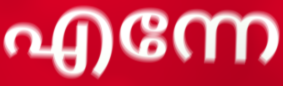
എന്നേ